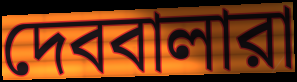
দেববালারা